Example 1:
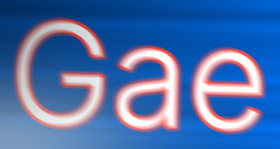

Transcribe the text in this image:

Gae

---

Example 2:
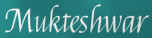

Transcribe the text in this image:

Mukteshwar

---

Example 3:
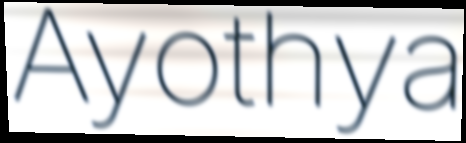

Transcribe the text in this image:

Ayothya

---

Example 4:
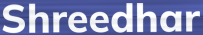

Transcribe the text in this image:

Shreedhar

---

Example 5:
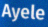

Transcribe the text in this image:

Ayele